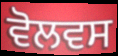
ਵੋਲਵਸ